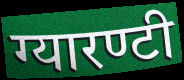
ग्यारण्टी